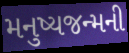
મનુષ્યજન્મની